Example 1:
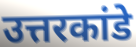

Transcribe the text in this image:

उत्तरकांडे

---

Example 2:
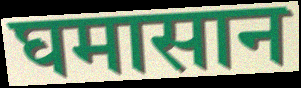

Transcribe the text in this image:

घमासान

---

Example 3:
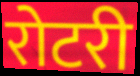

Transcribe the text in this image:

रोटरी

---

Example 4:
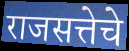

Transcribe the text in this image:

राजसत्तेचे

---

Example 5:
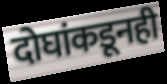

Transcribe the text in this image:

दोघांकडूनही